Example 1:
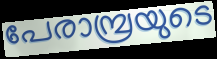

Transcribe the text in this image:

പേരാമ്പ്രയുടെ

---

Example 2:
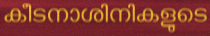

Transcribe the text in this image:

കീടനാശിനികളുടെ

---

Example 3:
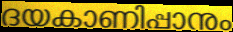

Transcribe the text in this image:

ദയകാണിപ്പാനും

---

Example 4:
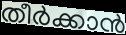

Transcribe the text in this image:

തീർക്കാൻ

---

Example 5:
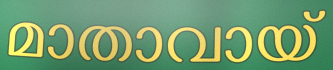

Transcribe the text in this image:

മാതാവായ്